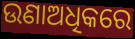
ଉଣାଅଧିକରେ